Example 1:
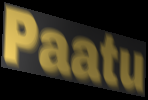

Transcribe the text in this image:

Paatu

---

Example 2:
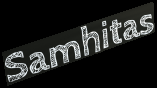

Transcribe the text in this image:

Samhitas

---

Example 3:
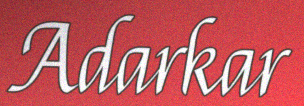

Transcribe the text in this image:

Adarkar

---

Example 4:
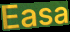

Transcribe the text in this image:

Easa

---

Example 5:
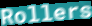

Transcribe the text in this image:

Rollers